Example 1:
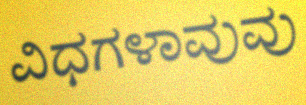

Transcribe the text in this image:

ವಿಧಗಳಾವುವು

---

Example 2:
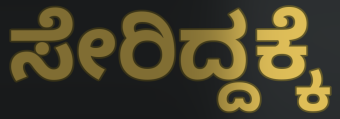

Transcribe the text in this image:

ಸೇರಿದ್ದಕ್ಕೆ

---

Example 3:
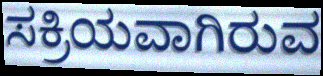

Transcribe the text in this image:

ಸಕ್ರಿಯವಾಗಿರುವ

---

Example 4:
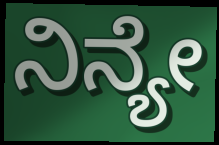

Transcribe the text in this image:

ನಿನ್ಯೇ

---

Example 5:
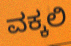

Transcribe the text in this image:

ವಕ್ಕಲಿ